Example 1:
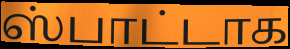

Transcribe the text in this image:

ஸ்பாட்டாக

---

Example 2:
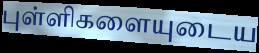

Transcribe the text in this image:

புள்ளிகளையுடைய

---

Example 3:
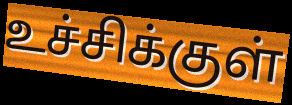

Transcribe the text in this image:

உச்சிக்குள்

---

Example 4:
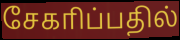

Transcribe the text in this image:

சேகரிப்பதில்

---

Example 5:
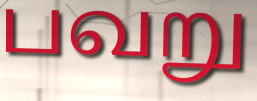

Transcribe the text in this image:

பவறு